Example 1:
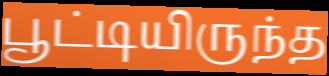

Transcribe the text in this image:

பூட்டியிருந்த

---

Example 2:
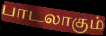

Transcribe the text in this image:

பாடலாகும்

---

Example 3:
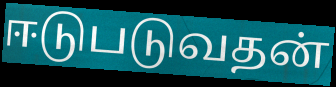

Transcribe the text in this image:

ஈடுபடுவதன்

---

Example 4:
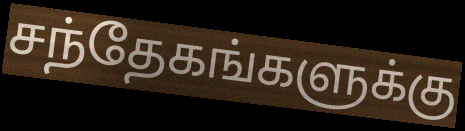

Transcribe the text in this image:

சந்தேகங்களுக்கு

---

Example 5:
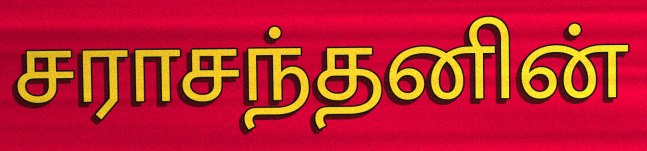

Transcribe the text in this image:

சராசந்தனின்